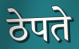
ठेपते